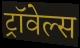
ट्रॉवेल्स